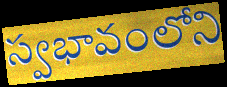
స్వభావంలోని